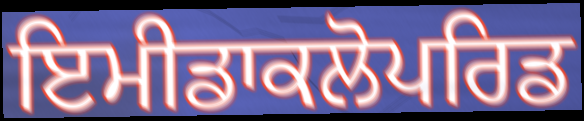
ਇਮੀਡਾਕਲੋਪਰਿਡ